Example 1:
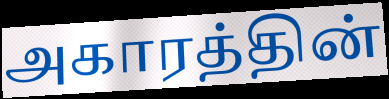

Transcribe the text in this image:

அகாரத்தின்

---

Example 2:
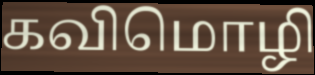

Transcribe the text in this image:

கவிமொழி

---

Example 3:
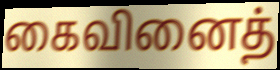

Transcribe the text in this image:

கைவினைத்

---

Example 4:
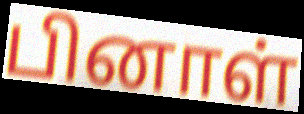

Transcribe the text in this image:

பினாள்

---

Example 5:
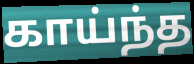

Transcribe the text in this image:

காய்ந்த